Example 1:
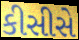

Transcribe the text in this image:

કીસીસે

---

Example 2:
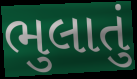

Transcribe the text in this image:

ભુલાતું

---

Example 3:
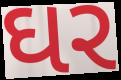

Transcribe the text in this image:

ઘર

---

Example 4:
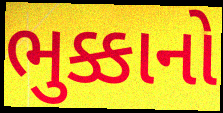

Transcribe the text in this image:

ભુક્કાનો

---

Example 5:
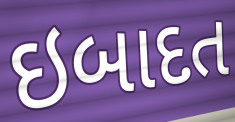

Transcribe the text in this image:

ઇબાદત